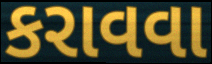
કરાવવા